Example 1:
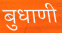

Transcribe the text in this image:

बुधाणी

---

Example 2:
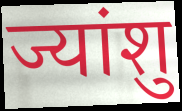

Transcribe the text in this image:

ज्यांशु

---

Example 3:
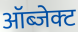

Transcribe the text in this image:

ऑब्‍जेक्‍ट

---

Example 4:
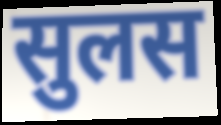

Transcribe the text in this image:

सुलस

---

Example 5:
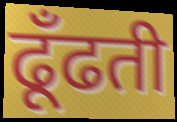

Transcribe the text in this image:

ढूँढती